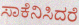
ಸಾಕೆನಿಸಿದರೆ